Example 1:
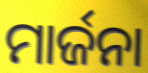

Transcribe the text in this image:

ମାର୍ଜନା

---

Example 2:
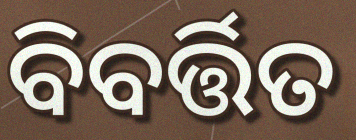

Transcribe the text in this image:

ବିବର୍ତ୍ତିତ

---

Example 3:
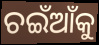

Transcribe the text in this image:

ଚଇଁଆଁକୁ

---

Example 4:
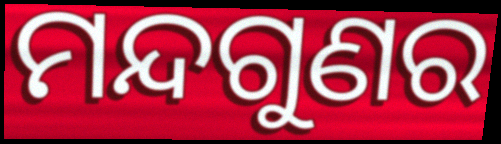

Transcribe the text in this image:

ମନ୍ଦଗୁଣର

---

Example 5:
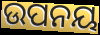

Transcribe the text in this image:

ଉପନୟ